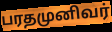
பரதமுனிவர்